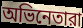
অভিনেতারা